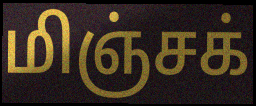
மிஞ்சக்